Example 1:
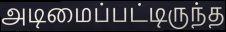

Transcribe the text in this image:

அடிமைப்பட்டிருந்த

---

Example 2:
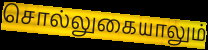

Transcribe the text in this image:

சொல்லுகையாலும்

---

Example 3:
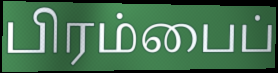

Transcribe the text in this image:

பிரம்பைப்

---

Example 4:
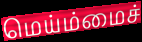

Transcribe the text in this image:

மெய்ம்மைச்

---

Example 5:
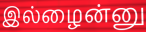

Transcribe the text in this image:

இல்ழைன்னு